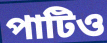
পাটিও